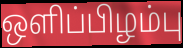
ஒளிப்பிழம்பு